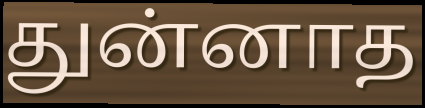
துன்னாத